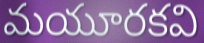
మయూరకవి